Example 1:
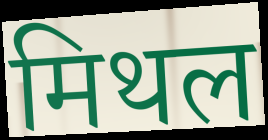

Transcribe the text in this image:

मिथल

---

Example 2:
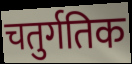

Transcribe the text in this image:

चतुर्गतिक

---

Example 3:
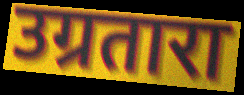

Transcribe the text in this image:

उग्रतारा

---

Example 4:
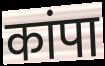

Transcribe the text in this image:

कांपा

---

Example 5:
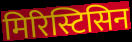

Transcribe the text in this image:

मिरिस्टिसिन